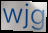
wjg